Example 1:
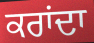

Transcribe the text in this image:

ਕਰਾਂਦਾ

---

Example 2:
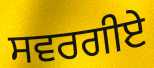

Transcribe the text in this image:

ਸਵਰਗੀਏ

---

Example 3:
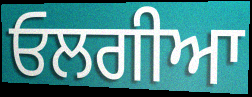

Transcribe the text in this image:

ਓਲਗੀਆ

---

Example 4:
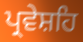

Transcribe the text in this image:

ਪ੍ਰਵੇਸ਼ਹਿ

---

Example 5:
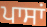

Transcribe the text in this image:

ਪਾਸਾਂ